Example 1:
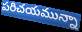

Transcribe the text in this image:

పరిచయమున్నా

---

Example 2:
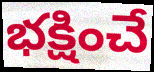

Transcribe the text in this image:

భక్షించే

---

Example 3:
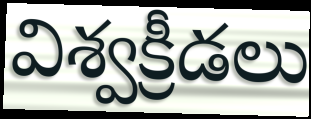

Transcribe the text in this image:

విశ్వక్రీడలు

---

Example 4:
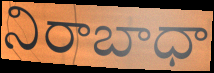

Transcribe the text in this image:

నిరాబాధా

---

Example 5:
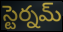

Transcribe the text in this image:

స్టెర్నమ్